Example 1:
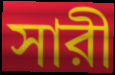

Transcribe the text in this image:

সারী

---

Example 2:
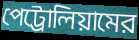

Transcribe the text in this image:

পেট্রোলিয়ামের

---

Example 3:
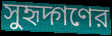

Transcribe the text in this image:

সুহৃদ্গণের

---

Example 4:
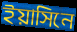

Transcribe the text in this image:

ইয়াসিনে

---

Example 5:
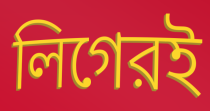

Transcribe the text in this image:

লিগেরই